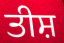
ਤੀਸ਼